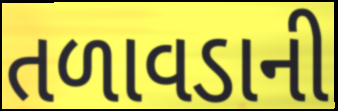
તળાવડાની